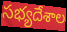
సభ్యదేశాల